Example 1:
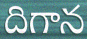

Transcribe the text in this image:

దిగాన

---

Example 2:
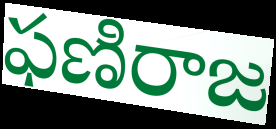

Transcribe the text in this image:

ఫణిరాజ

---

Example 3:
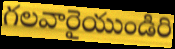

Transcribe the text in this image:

గలవారైయుండిరి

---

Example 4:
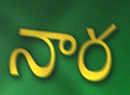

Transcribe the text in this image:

నార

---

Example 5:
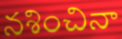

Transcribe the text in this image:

నశించినా